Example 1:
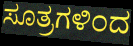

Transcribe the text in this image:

ಸೂತ್ರಗಳಿಂದ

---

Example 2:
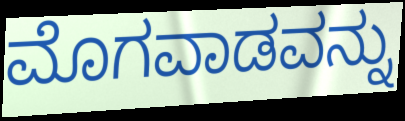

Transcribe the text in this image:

ಮೊಗವಾಡವನ್ನು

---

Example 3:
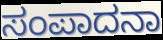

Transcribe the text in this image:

ಸಂಪಾದನಾ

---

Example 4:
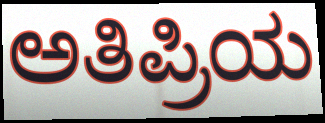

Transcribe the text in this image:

ಅತಿಪ್ರಿಯ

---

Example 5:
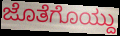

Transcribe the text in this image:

ಜೊತೆಗೊಯ್ದು